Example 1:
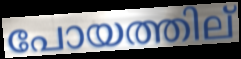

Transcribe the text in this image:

പോയത്തില്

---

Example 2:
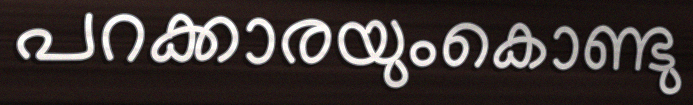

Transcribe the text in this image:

പറക്കാരയുംകൊണ്ടു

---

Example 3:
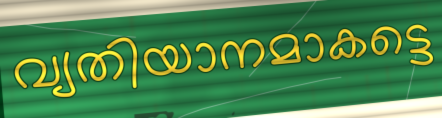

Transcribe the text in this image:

വ്യതിയാനമാകട്ടെ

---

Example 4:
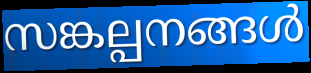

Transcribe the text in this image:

സങ്കല്പനങ്ങൾ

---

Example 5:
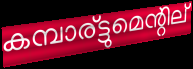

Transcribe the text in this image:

കമ്പാര്ട്ടുമെന്റില്